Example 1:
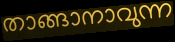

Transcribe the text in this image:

താങ്ങാനാവുന്ന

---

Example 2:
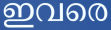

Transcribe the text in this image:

ഇവരെ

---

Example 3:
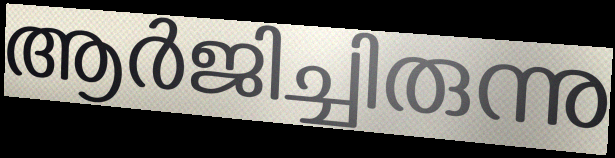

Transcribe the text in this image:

ആർജിച്ചിരുന്നു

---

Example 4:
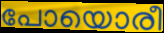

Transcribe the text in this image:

പോയൊരീ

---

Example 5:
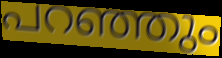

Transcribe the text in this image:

പറഞ്ഞും